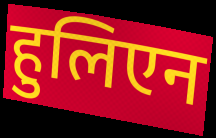
हुलिएन